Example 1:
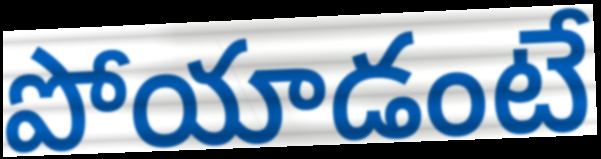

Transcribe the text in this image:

పోయాడంటే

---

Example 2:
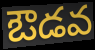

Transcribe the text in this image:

ఔడవ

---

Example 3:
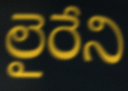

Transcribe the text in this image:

లైరేని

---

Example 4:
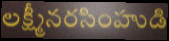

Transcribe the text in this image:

లక్ష్మీనరసింహుడి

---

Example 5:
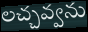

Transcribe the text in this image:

లచ్చవ్వను